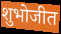
शुभोजीत